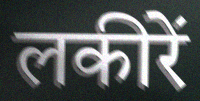
लकीरें